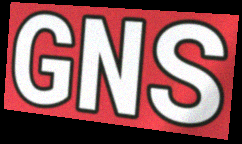
GNS